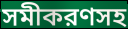
সমীকরণসহ